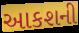
આકશની